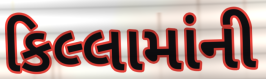
કિલ્લામાંની